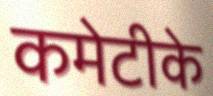
कमेटीके